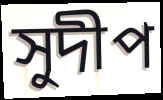
সুদীপ